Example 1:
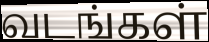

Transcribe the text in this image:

வடங்கள்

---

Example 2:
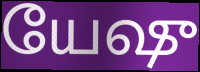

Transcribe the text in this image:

யேஷு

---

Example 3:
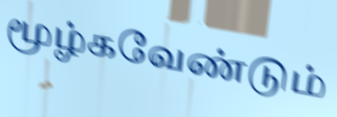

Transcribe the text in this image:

மூழ்கவேண்டும்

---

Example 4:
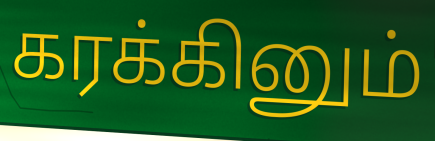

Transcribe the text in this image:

கரக்கினும்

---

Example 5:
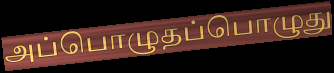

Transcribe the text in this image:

அப்பொழுதப்பொழுது